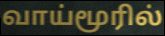
வாய்மூரில்